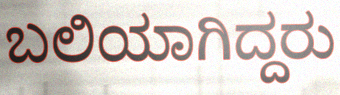
ಬಲಿಯಾಗಿದ್ದರು